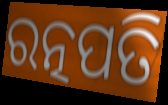
ରତ୍ନପତି